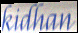
kidhan